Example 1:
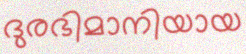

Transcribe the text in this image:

ദുരഭിമാനിയായ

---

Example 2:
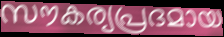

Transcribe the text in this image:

സൗകര്യപ്രദമായ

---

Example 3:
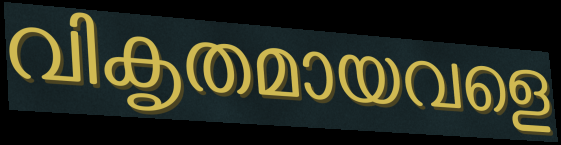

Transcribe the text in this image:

വികൃതമായവളെ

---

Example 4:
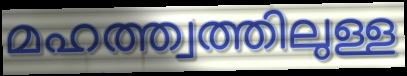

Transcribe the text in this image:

മഹത്ത്വത്തിലുള്ള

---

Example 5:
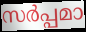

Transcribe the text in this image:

സർപ്പമാ